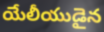
యేలీయుడైన